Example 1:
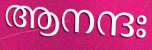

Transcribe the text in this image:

ആനന്ദഃ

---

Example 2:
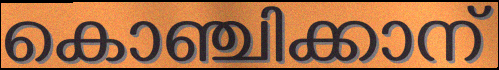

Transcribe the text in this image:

കൊഞ്ചിക്കാന്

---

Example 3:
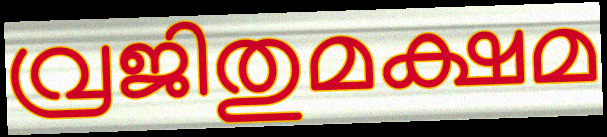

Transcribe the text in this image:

വ്രജിതുമക്ഷമ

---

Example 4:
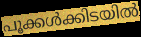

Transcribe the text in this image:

പൂക്കൾക്കിടയിൽ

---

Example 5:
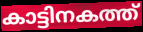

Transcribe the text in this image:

കാട്ടിനകത്ത്